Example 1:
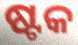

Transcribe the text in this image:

ଷ୍ଟକ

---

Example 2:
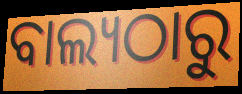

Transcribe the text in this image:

ବାଲ୍ୟଠାରୁ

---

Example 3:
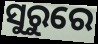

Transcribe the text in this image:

ସୁରୁରେ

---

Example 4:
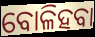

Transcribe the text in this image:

ବୋଳିହବା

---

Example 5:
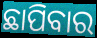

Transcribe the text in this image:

ଛାପିବାର